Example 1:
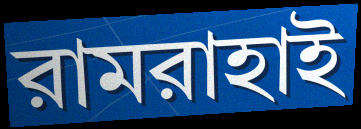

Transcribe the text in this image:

রামরাহাই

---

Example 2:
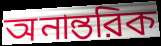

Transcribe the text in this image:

অনান্তরিক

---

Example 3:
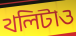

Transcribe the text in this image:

থলিটাও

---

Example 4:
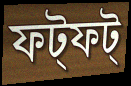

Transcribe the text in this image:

ফট্ফট্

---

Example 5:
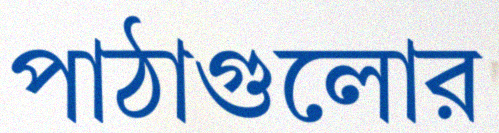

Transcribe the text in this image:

পাঠাগুলোর